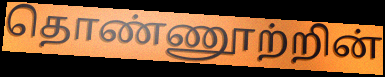
தொண்ணூற்றின்